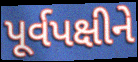
પૂર્વપક્ષીને